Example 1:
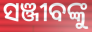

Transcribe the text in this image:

ସଞ୍ଜୀବଙ୍କୁ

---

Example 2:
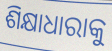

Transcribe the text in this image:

ଶିକ୍ଷାଧାରାକୁ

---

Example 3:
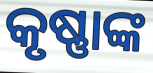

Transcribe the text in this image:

କୃଷ୍ଣାଙ୍କ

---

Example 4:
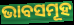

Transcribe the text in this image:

ଭାବସମୂହ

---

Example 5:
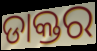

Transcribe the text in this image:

ଡାକ୍ତର